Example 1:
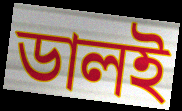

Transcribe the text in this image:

ডালই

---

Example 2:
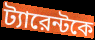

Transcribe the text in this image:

ট্যারেন্টকে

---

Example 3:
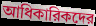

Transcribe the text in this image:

আধিকারিকদের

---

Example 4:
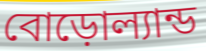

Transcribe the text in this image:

বোড়োল্যান্ড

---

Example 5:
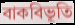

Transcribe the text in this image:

বাকবিভূতি